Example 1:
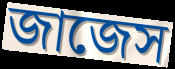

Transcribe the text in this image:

জাজেস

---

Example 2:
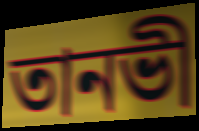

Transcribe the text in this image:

তানভী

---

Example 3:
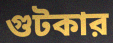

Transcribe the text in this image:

গুটকার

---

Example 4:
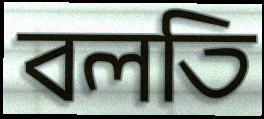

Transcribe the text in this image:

বলতি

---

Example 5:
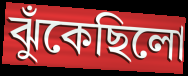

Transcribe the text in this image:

ঝুঁকেছিলো